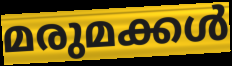
മരുമക്കൾ